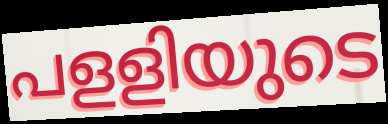
പളളിയുടെ